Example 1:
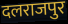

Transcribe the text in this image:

दलराजपुर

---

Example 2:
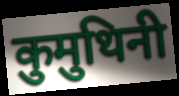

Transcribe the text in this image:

कुमुथिनी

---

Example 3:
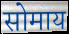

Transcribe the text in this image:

सोमाय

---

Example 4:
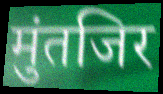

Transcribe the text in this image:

मुंतजिर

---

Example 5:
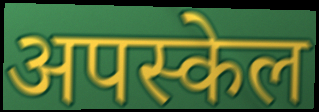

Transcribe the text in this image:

अपस्केल